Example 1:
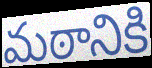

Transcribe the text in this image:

మఠానికి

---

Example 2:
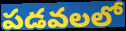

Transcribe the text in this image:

పడవలలో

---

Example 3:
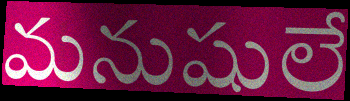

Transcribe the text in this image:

మనుషులే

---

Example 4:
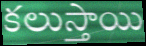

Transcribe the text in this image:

కలుస్తాయి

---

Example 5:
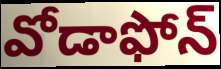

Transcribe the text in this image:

వోడాఫోన్